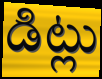
డిట్లు